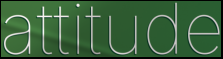
attitude